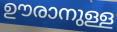
ഊരാനുള്ള